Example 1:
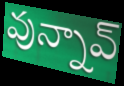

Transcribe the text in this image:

వున్నావ్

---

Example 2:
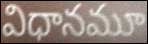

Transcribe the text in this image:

విధానమూ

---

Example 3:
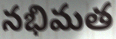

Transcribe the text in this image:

నభిమత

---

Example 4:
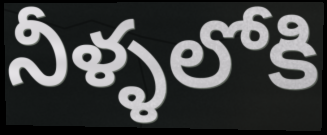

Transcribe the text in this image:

నీళ్ళలోకి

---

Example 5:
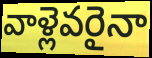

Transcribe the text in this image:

వాళ్లెవరైనా